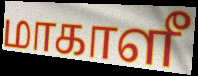
மாகாளீ